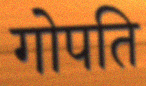
गोपति